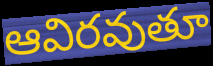
ఆవిరవుతూ